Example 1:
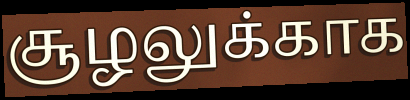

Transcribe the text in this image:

சூழலுக்காக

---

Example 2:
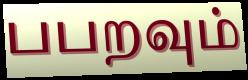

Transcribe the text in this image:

பபறவும்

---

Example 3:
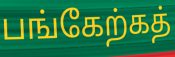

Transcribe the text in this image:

பங்கேற்கத்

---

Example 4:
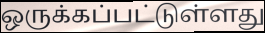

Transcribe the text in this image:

ஒருக்கப்பட்டுள்ளது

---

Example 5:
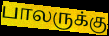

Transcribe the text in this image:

பாலருக்கு